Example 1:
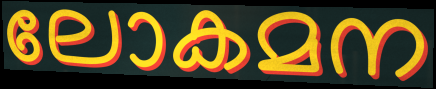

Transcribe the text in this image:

ലോകമന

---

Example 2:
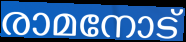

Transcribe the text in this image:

രാമനോട്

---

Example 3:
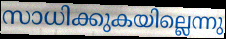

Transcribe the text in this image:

സാധിക്കുകയില്ലെന്നു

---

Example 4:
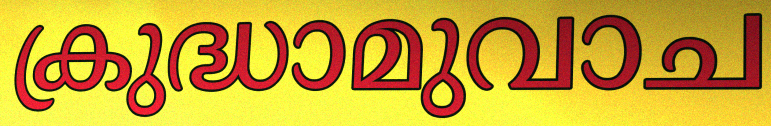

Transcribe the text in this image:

ക്രുദ്ധാമുവാച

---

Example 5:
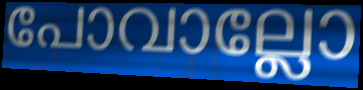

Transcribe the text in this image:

പോവാല്ലോ